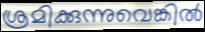
ശ്രമിക്കുന്നുവെങ്കിൽ